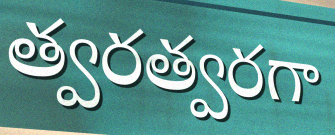
త్వరత్వరగా